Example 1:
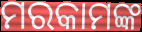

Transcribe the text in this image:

ମରକାମଙ୍କ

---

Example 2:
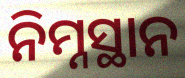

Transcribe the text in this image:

ନିମ୍ନସ୍ଥାନ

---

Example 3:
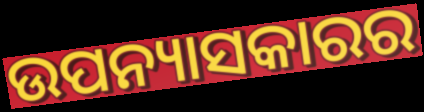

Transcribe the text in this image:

ଉପନ୍ୟାସକାରର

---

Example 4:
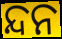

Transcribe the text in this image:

ନ୍ଦନ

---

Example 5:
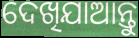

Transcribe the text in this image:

ଦେଖିଯାଆନ୍ତୁ